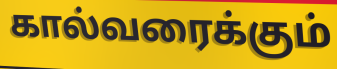
கால்வரைக்கும்